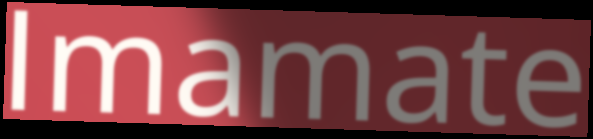
Imamate